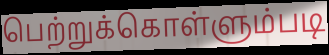
பெற்றுக்கொள்ளும்படி